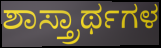
ಶಾಸ್ತ್ರಾರ್ಥಗಳ